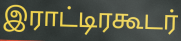
இராட்டிரகூடர்